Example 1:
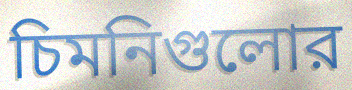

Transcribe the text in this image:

চিমনিগুলোর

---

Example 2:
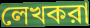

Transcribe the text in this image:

লেখকরা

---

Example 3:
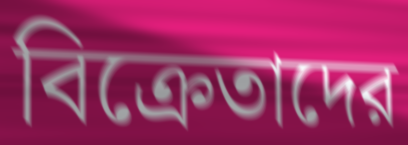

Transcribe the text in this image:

বিক্রেতাদের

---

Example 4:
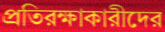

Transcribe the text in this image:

প্রতিরক্ষাকারীদের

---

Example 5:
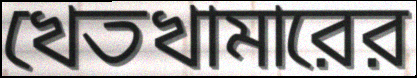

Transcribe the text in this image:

খেতখামারের